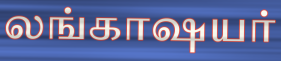
லங்காஷயர்